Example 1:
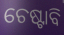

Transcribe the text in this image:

ଚେଷ୍ଟାବି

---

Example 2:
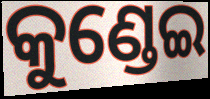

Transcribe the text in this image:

କୁଣ୍ଡେଇ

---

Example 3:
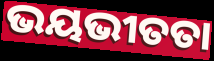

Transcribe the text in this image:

ଭୟଭୀତତା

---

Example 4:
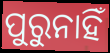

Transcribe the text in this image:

ପୁରୁନାହିଁ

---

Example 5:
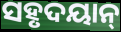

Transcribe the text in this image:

ସହୃଦୟାନ୍